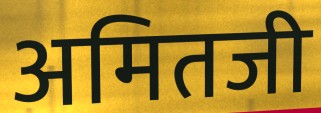
अमितजी